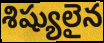
శిష్యులైన